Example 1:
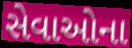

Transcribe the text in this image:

સેવાઓના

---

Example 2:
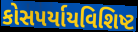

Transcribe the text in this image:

કોસપર્યાયવિશિષ્ટ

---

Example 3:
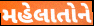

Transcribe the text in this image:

મહેલાતોને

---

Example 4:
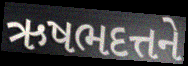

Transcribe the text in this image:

ઋષભદત્તને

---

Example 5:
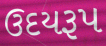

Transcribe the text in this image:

ઉદયરૂપ